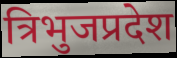
त्रिभुजप्रदेश